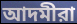
আদমীরা